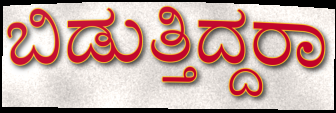
ಬಿಡುತ್ತಿದ್ದರಾ